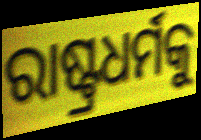
ରାଷ୍ଟ୍ରଧର୍ମକୁ